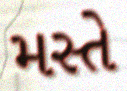
મસ્તે